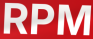
RPM